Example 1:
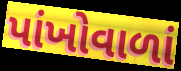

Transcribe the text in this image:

પાંખોવાળાં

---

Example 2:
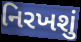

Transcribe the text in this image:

નિરખશું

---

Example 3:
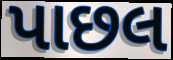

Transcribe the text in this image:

પાછલ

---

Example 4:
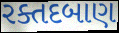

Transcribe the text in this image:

રક્તદબાણ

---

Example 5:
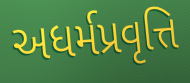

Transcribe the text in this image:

અધર્મપ્રવૃત્તિ